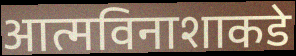
आत्मविनाशाकडे